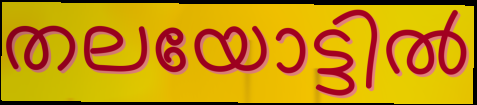
തലയോട്ടിൽ